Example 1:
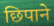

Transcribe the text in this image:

छिपाने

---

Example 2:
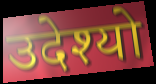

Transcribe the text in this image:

उदेश्यो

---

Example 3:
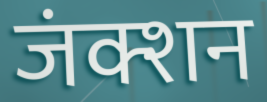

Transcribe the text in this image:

जंक्शन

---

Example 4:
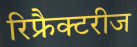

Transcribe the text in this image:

रिफ्रैक्टरीज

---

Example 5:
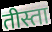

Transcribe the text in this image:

तीस्ता